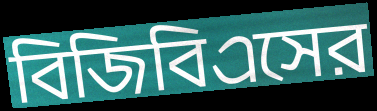
বিজিবিএসের